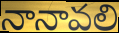
నానావలి